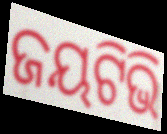
ଜୟଟିଭି